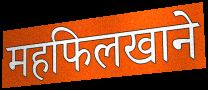
महफिलखाने